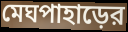
মেঘপাহাড়ের